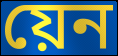
য়েন